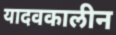
यादवकालीन